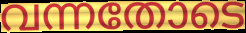
വന്നതോടെ